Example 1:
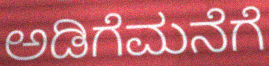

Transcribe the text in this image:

ಅಡಿಗೆಮನೆಗೆ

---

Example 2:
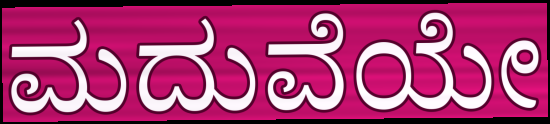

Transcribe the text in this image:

ಮದುವೆಯೇ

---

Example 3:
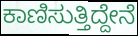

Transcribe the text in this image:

ಕಾಣಿಸುತ್ತಿದ್ದೇನೆ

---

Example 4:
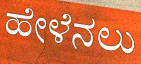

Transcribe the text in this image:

ಹೇಳೆನಲು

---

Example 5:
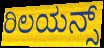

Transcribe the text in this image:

ರಿಲಯನ್ಸ್